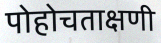
पोहोचताक्षणी